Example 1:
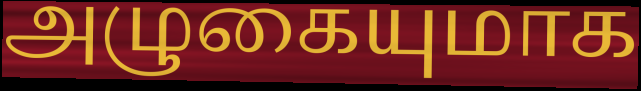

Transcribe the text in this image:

அழுகையுமாக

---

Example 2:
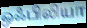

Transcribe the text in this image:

ஒஃபிலியா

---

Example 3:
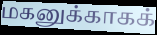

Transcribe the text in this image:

மகனுக்காகக்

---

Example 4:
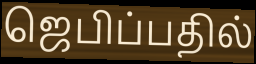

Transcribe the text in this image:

ஜெபிப்பதில்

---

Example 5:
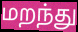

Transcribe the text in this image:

மறந்து